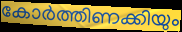
കോർത്തിണക്കിയും